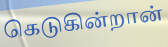
கெடுகின்றான்